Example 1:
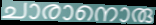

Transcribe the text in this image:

ചാരാനൊരു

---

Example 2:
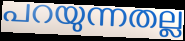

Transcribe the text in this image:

പറയുന്നതല്ല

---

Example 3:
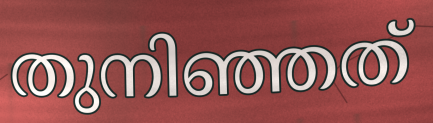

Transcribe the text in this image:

തുനിഞ്ഞത്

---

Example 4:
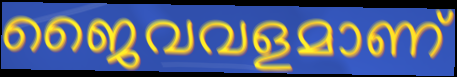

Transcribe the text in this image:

ജൈവവളമാണ്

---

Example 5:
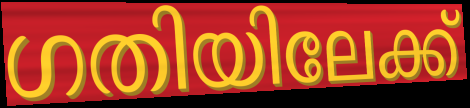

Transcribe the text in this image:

ഗതിയിലേക്ക്